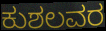
ಕುಶಲವರ